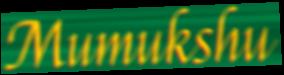
Mumukshu